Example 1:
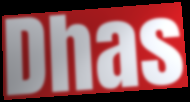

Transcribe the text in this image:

Dhas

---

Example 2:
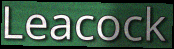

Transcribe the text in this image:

Leacock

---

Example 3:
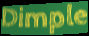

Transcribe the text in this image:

Dimple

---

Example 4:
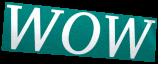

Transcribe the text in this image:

WOW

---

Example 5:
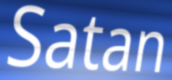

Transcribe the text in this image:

Satan